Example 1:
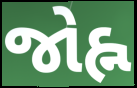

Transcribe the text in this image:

જોહ્ન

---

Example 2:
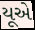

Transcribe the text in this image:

યૂએ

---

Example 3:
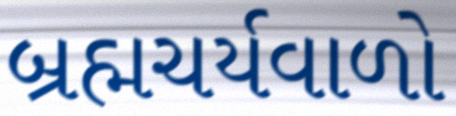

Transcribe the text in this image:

બ્રહ્મચર્યવાળો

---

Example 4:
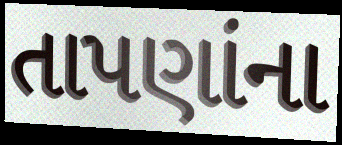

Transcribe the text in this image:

તાપણાંના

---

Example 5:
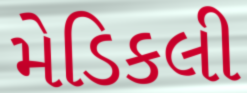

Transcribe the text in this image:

મેડિકલી